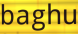
baghu